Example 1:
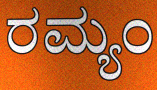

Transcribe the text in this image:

ರಮ್ಯಂ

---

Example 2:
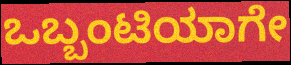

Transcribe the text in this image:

ಒಬ್ಬಂಟಿಯಾಗೇ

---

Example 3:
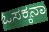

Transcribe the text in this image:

ಓಸಕ್ಕನಾ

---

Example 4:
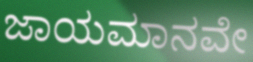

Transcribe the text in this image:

ಜಾಯಮಾನವೇ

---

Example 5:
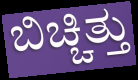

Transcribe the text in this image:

ಬಿಚ್ಚಿತ್ತು